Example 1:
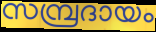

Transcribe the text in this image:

സമ്പ്രദായം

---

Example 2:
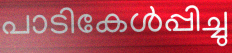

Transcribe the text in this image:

പാടികേൾപ്പിച്ചു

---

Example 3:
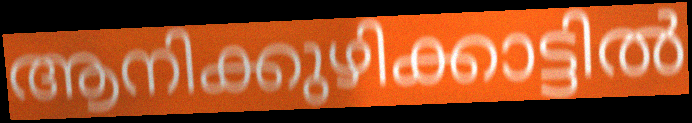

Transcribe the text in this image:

ആനിക്കുഴിക്കാട്ടിൽ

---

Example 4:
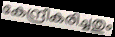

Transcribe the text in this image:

കേന്ദ്രീകരിച്ചതും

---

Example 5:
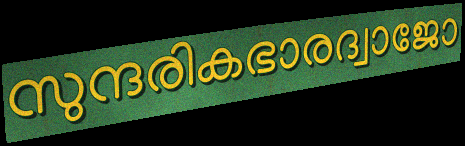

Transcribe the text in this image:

സുന്ദരികഭാരദ്വാജോ